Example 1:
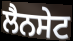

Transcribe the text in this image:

ਲੈਨਸੇਟ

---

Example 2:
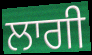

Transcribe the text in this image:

ਲਾਗੀ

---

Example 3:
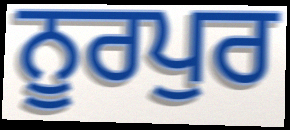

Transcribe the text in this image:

ਨੂਰਪੁਰ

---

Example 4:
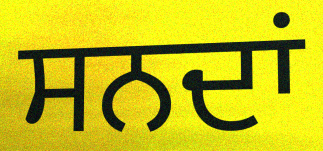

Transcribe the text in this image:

ਸਨਦਾਂ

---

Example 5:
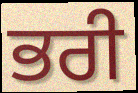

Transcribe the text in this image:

ਭਰੀ